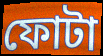
ফোটা